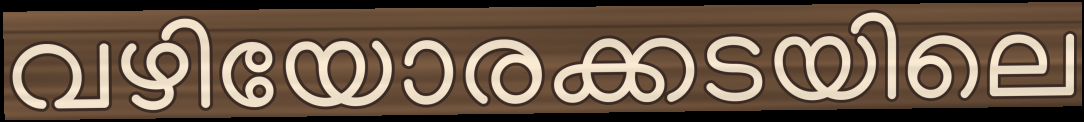
വഴിയോരക്കടയിലെ